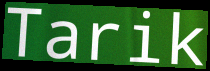
Tarik